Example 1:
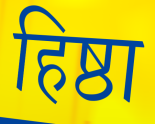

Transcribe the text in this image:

हिष्ठा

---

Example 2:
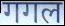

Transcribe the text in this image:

गगल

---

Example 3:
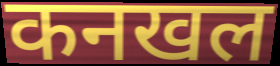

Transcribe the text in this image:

कनखल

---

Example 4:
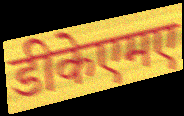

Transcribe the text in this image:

डीकेएमए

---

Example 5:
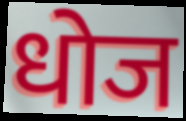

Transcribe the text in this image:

धोज